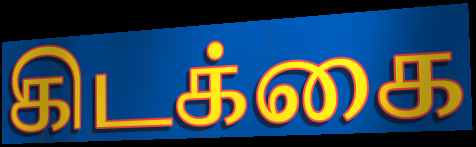
கிடக்கை